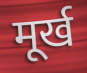
मूर्ख